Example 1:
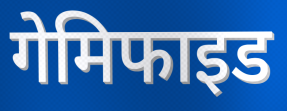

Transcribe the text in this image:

गेमिफाइड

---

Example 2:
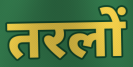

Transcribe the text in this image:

तरलों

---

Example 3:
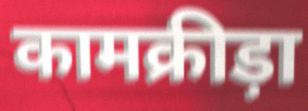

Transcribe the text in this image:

कामक्रीड़ा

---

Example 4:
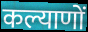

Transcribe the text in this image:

कल्याणों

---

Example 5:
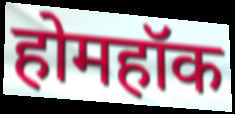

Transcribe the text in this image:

होमहॉक